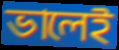
ভালেই